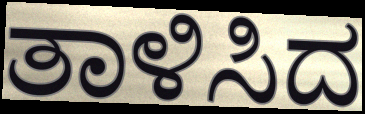
ತಾಳಿಸಿದ